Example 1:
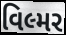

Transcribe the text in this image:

વિલ્મર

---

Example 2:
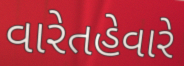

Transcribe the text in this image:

વારેતહેવારે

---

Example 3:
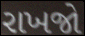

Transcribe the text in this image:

રાખજો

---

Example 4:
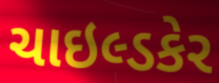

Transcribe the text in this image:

ચાઇલ્ડકેર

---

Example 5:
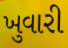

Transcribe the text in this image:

ખુવારી